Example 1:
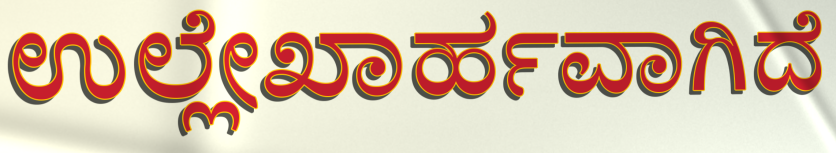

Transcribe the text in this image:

ಉಲ್ಲೇಖಾರ್ಹವಾಗಿದೆ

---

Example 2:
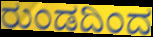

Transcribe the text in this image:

ರುಂಡದಿಂದ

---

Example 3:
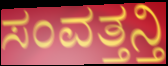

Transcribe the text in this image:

ಸಂವತ್ತನ್ತಿ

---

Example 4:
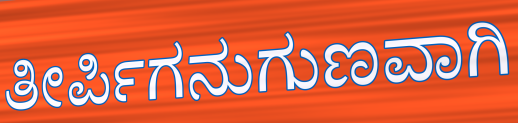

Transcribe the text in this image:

ತೀರ್ಪಿಗನುಗುಣವಾಗಿ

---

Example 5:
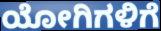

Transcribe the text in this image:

ಯೋಗಿಗಳಿಗೆ